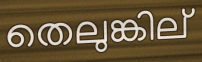
തെലുങ്കില്